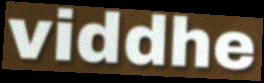
viddhe